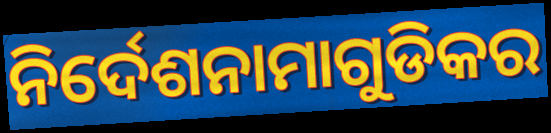
ନିର୍ଦେଶନାମାଗୁଡିକର